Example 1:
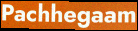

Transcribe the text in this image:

Pachhegaam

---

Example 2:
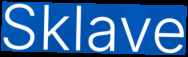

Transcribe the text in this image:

Sklave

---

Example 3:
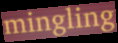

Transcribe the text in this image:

mingling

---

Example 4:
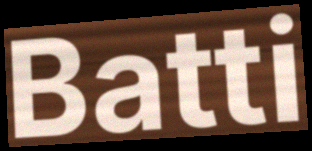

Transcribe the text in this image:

Batti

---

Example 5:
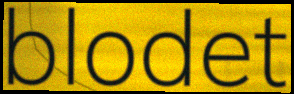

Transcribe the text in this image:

blodet